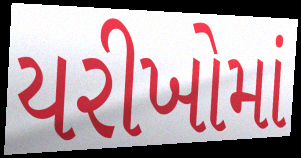
યરીખોમાં